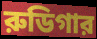
রুডিগার